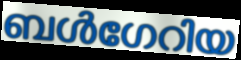
ബൾഗേറിയ